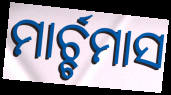
ମାର୍ଚ୍ଚମାସ